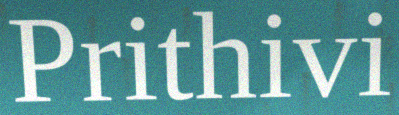
Prithivi